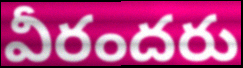
వీరందరు